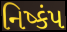
નિષ્કંપ